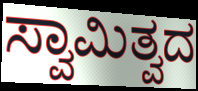
ಸ್ವಾಮಿತ್ವದ